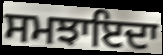
ਸਮਝਾਇਦਾ